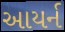
આયર્ન